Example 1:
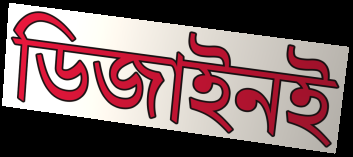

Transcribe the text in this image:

ডিজাইনই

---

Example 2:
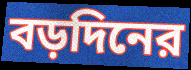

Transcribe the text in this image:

বড়দিনের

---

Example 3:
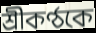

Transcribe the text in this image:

শ্রীকণ্ঠকে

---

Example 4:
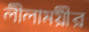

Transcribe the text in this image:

লীলাময়ীর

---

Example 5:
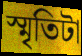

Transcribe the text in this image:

স্মৃতিটা